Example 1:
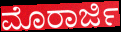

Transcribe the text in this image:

ಮೊರಾರ್ಜಿ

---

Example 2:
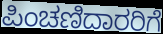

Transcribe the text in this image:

ಪಿಂಚಣಿದಾರರಿಗೆ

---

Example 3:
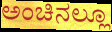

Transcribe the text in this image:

ಅಂಚಿನಲ್ಲೂ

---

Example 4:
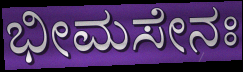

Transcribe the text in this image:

ಭೀಮಸೇನಃ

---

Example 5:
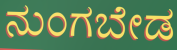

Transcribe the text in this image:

ನುಂಗಬೇಡ